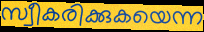
സ്വീകരിക്കുകയെന്ന